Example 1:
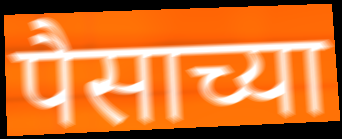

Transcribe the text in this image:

पैसाच्या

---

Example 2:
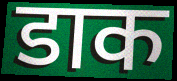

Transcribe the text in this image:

डाक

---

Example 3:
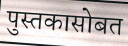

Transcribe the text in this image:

पुस्तकासोबत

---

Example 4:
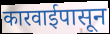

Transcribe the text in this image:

कारवाईपासून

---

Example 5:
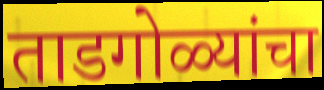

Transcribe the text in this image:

ताडगोळ्यांचा